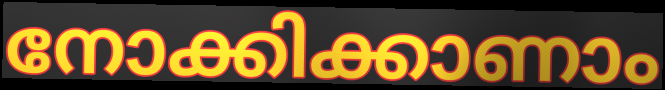
നോക്കിക്കാണാം